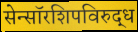
सेन्सॉरशिपविरुद्ध